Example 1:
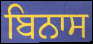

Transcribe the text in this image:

ਬਿਨਾਸ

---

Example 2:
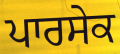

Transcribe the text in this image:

ਪਾਰਸੇਕ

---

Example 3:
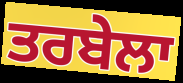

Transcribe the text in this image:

ਤਰਬੇਲਾ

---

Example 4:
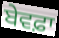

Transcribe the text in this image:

ਬੇਵਫ਼ਾ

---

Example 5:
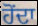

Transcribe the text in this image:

ਹੋਂਦਾ